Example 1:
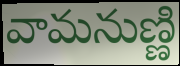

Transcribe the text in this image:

వామనుణ్ణి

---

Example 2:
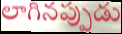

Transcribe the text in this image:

లాగినప్పుడు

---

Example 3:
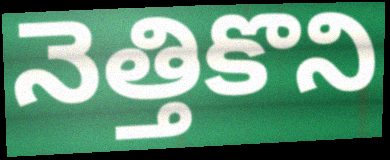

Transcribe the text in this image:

నెత్తికొని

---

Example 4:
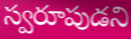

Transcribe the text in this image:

స్వరూపుడని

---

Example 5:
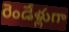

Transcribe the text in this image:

రెండేళ్లుగా